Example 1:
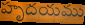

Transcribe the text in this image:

హృదయము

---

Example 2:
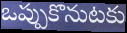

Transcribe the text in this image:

ఒప్పుకొనుటకు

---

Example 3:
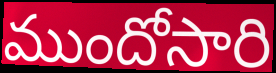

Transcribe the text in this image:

ముందోసారి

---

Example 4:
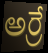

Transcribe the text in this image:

అర్రే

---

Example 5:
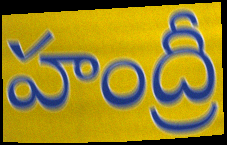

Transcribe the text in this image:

హంద్రీ